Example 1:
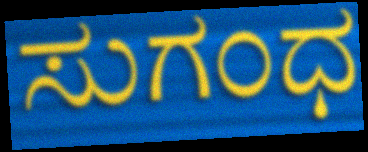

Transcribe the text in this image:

ಸುಗಂಧ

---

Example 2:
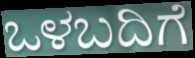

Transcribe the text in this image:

ಒಳಬದಿಗೆ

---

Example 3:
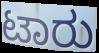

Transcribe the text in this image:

ಟಾರು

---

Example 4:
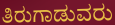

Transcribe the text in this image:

ತಿರುಗಾಡುವರು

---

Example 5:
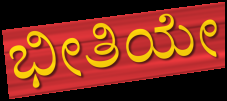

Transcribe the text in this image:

ಭೀತಿಯೇ